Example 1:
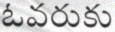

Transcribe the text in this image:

ఓవరుకు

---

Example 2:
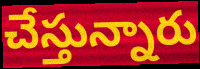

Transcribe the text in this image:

చేస్తున్నారు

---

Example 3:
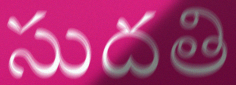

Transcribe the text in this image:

సుదతి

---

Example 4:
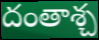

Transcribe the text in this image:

దంతాశ్చ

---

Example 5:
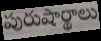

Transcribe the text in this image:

పురుషార్థాలు